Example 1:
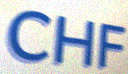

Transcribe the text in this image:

CHF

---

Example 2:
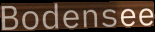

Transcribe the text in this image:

Bodensee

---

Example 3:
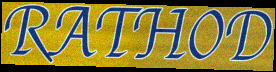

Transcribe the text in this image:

RATHOD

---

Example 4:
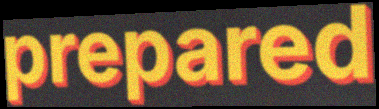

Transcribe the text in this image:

prepared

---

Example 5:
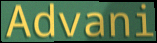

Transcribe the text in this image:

Advani